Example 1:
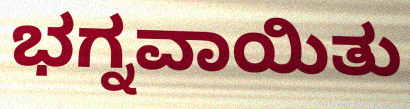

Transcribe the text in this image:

ಭಗ್ನವಾಯಿತು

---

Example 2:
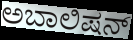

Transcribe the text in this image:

ಅಬಾಲಿಷನ್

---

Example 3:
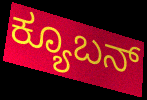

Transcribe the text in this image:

ಕ್ಯೂಬನ್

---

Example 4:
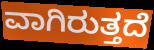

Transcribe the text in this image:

ವಾಗಿರುತ್ತದೆ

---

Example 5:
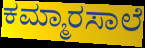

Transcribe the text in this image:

ಕಮ್ಮಾರಸಾಲೆ